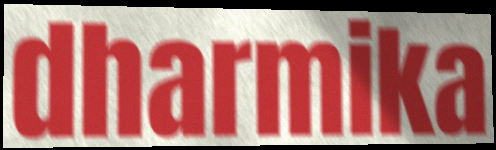
dharmika